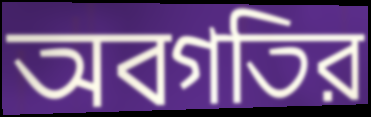
অবগতির